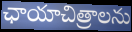
ఛాయాచిత్రాలను